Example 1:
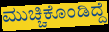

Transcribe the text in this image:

ಮುಚ್ಚಿಕೊಂಡಿದ್ದೆ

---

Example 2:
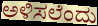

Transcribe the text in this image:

ಅಳಿಸಲೆಂದು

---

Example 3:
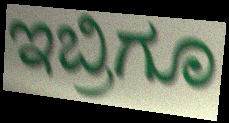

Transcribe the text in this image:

ಇಬ್ರಿಗೂ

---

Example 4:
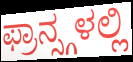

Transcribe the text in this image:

ಫ್ರಾನ್ಸ್ಗಳಲ್ಲಿ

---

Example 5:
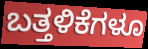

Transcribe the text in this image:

ಬತ್ತಳಿಕೆಗಳೂ